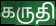
கருதி